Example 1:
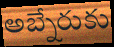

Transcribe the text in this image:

అబ్నేరుకు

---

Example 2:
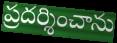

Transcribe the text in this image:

ప్రదర్శించాను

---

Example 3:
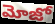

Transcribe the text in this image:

మోజో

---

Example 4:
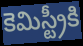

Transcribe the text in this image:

కెమిస్ట్రీకి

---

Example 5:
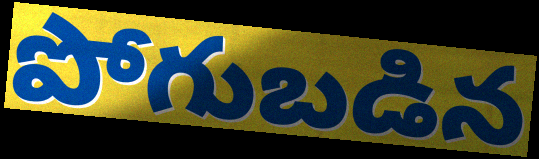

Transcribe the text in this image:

పోగుబడిన